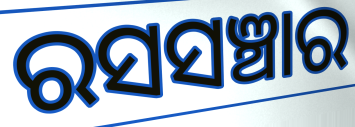
ରସସଞ୍ଚାର